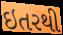
ઇતરથી